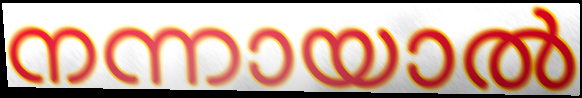
നന്നായാൽ